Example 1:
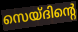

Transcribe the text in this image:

സെയ്ദിന്റെ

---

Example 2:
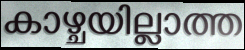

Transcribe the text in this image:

കാഴ്ചയില്ലാത്ത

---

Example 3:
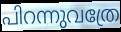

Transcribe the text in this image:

പിറന്നുവത്രേ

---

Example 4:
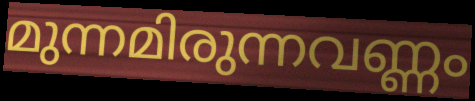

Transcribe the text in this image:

മുന്നമിരുന്നവണ്ണം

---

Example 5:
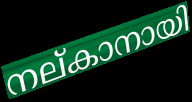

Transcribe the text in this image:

നല്കാനായി